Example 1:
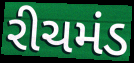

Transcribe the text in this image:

રીચમંડ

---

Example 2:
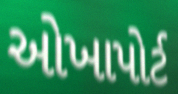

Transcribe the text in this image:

ઓખાપોર્ટ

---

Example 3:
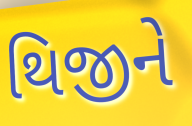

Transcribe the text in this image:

થિજીને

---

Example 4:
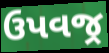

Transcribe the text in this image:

ઉપવજ્ર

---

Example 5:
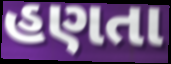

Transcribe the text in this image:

હણતા